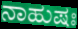
ನಾಹುಷಃ